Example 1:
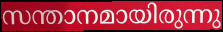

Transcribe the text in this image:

സന്താനമായിരുന്നു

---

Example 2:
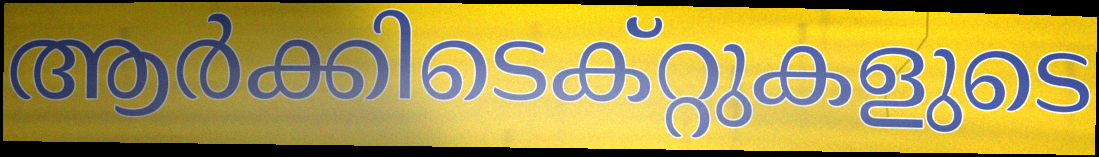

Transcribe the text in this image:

ആർക്കിടെക്റ്റുകളുടെ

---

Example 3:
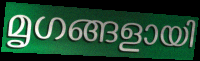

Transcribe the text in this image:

മൃഗങ്ങളായി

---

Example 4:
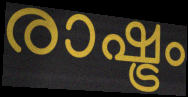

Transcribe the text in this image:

രാഷ്ട്രം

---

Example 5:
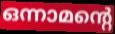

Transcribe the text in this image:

ഒന്നാമന്റെ